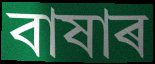
বাষাৰ